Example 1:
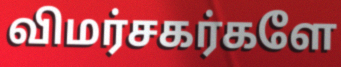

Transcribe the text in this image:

விமர்சகர்களே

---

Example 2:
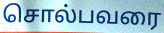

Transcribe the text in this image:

சொல்பவரை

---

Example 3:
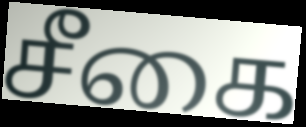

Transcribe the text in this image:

சீகை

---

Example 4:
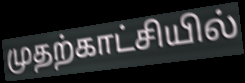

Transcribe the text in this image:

முதற்காட்சியில்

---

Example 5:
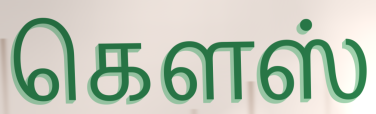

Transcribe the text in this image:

கௌஸ்